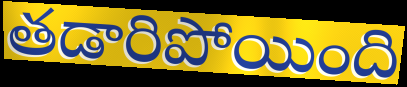
తడారిపోయింది